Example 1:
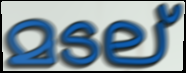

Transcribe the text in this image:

മടല്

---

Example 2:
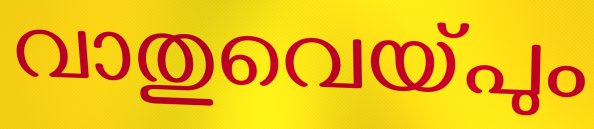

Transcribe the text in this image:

വാതുവെയ്പും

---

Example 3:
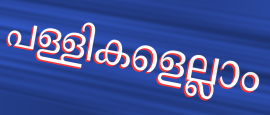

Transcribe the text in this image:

പള്ളികളെല്ലാം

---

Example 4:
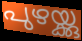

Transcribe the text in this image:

പുഴയ്ക്കു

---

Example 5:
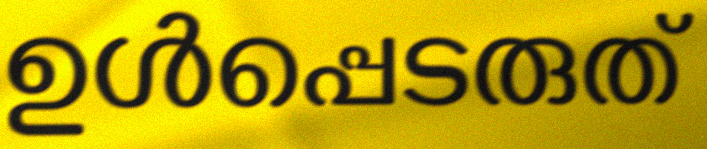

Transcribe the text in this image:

ഉൾപ്പെടരുത്